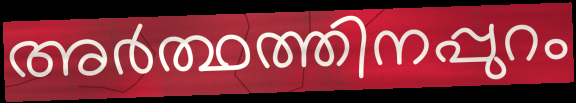
അർത്ഥത്തിനപ്പുറം